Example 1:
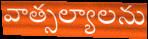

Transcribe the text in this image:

వాత్సల్యాలను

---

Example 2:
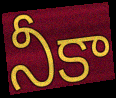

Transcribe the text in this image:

నీకా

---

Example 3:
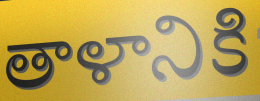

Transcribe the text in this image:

తాళానికి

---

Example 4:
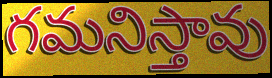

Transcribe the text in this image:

గమనిస్తావు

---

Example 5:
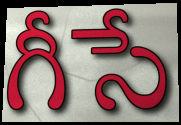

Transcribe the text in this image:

గీసే